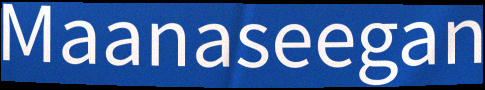
Maanaseegan